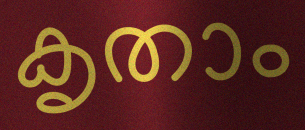
കൃതാം